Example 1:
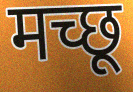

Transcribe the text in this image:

मच्छू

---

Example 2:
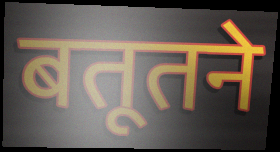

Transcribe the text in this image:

बतूतने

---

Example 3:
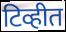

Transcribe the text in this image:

टिव्हीत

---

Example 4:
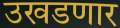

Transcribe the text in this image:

उखडणार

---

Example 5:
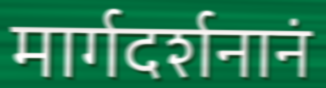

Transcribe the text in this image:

मार्गदर्शनानं